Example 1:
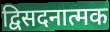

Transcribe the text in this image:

द्विसदनात्मक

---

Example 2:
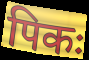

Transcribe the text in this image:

पिकः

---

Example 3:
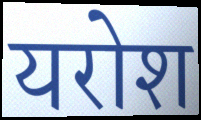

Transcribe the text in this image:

यरोश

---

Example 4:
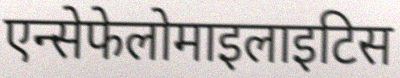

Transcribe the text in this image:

एन्सेफेलोमाइलाइटिस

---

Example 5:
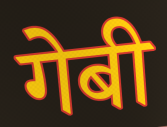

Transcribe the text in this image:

गेबी